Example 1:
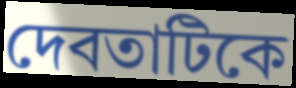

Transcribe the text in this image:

দেবতাটিকে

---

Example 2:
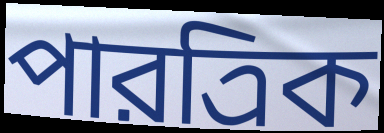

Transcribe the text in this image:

পারত্রিক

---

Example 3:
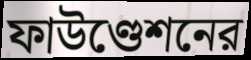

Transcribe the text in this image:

ফাউণ্ডেশনের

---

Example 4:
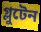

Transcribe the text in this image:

গ্লুটেন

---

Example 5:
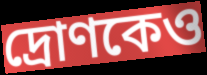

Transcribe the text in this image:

দ্রোণকেও